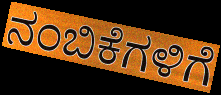
ನಂಬಿಕೆಗಳಿಗೆ